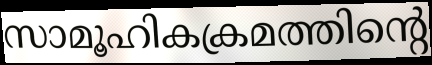
സാമൂഹികക്രമത്തിന്റെ